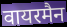
वायरमैन